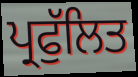
ਪ੍ਰਫੁੱਲਿਤ